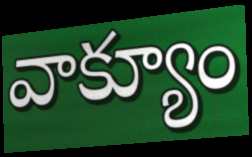
వాక్యూం